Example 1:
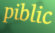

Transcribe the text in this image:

piblic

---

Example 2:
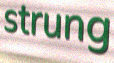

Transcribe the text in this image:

strung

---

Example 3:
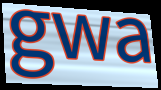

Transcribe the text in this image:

gwa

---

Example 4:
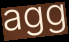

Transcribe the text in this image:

agg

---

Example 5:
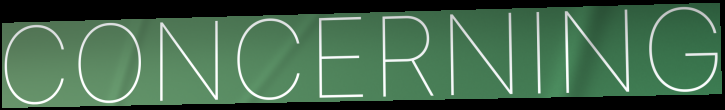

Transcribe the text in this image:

CONCERNING